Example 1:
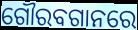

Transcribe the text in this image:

ଗୌରବଗାନରେ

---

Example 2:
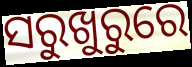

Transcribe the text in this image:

ସରୁଖୁରୁରେ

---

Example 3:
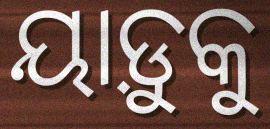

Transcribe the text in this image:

ୟାଡ଼ୁକୁ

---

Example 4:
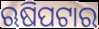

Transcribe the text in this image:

ଋଷିପଟାର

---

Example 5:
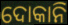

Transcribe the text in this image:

ଦୋକାନି